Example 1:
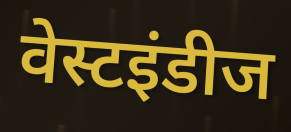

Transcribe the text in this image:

वेस्टइंडीज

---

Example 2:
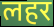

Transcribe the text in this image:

लहर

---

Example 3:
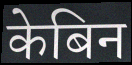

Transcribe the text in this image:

केबिन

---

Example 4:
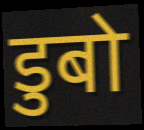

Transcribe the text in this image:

डुबो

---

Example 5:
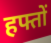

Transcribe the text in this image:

हफ्तों